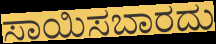
ಸಾಯಿಸಬಾರದು